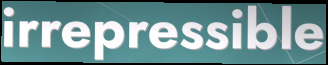
irrepressible